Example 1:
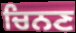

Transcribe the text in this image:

ਚਿਨਣ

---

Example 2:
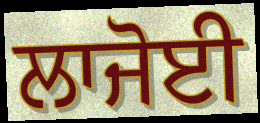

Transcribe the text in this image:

ਲਾਜੋਈ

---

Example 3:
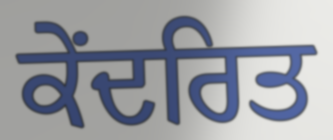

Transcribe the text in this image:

ਕੇਂਦਰਿਤ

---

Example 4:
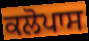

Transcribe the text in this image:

ਕਲੋਪਾਸ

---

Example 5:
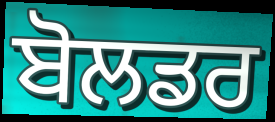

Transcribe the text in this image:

ਬੋਲਡਰ